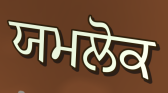
ਯਮਲੋਕ